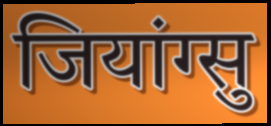
जियांग्सु